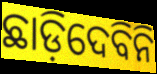
ଛାଡ଼ିଦେବିନି